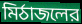
মিঠাজলের